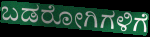
ಬಡರೋಗಿಗಳಿಗೆ